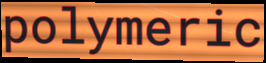
polymeric